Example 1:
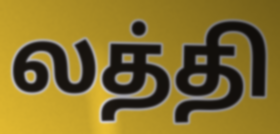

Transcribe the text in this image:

லத்தி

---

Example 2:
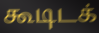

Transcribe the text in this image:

கூடிடக்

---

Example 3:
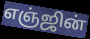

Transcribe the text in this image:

எஞ்ஜின்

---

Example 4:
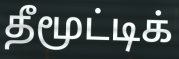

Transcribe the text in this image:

தீமூட்டிக்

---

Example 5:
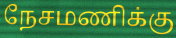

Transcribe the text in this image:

நேசமணிக்கு